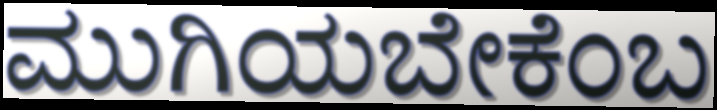
ಮುಗಿಯಬೇಕೆಂಬ